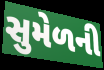
સુમેળની